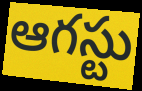
ఆగస్టు